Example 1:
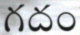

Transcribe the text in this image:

గదం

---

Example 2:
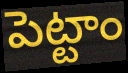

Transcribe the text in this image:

పెట్టాం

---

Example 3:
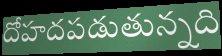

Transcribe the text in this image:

దోహదపడుతున్నది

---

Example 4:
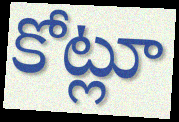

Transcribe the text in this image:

కోట్లూ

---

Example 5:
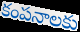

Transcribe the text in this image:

కంపనాలకు